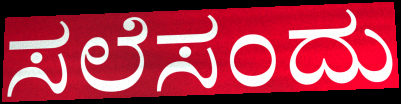
ಸಲೆಸಂದು